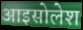
आइसोलेश